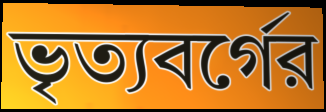
ভৃত্যবর্গের